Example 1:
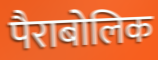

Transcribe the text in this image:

पैराबोलिक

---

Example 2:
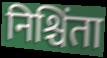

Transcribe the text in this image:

निश्चिंता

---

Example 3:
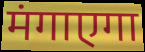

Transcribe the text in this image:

मंगाएगा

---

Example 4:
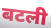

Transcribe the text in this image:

बटली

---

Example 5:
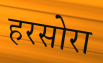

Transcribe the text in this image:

हरसोरा